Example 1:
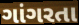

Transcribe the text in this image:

ગાંગરતા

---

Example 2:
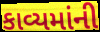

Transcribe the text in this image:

કાવ્યમાંની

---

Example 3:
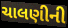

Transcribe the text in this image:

ચાલણીની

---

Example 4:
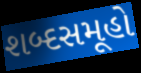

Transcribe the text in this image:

શબ્દસમૂહો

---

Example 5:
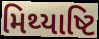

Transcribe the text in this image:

મિથ્યાષ્ટિ